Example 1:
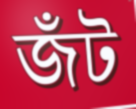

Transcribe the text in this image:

জঁট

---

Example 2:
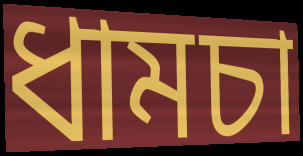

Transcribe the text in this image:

ধামচা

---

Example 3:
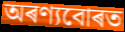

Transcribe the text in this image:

অৰণ্যবোৰত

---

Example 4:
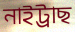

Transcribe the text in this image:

নাইট্ৰাছ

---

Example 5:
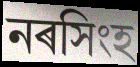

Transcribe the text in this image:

নৰসিংহ